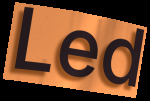
Led